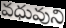
వధువుని